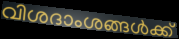
വിശദാംശങ്ങൾക്ക്